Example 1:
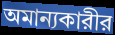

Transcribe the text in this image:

অমান্যকারীর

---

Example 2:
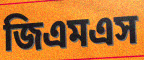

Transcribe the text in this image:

জিএমএস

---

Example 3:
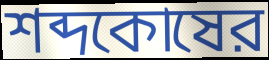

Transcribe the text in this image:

শব্দকোষের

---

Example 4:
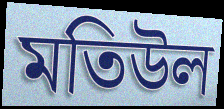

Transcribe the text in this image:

মতিউল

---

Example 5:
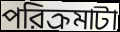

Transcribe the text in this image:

পরিক্রমাটা